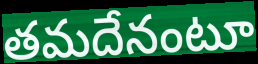
తమదేనంటూ